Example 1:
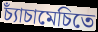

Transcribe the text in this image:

চ্যাঁচামেচিতে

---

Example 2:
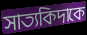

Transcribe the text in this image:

সাত্যকিদাকে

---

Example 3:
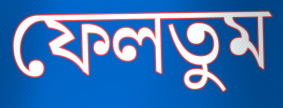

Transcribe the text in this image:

ফেলতুম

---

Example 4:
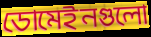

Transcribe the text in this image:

ডোমেইনগুলো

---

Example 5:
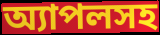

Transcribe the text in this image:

অ্যাপলসহ